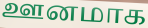
ஊனமாக